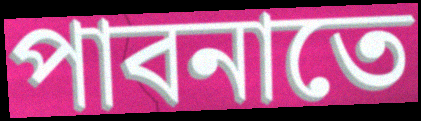
পাবনাতে